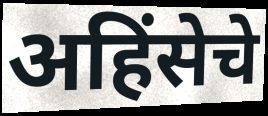
अहिंसेचे